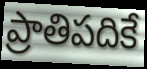
ప్రాతిపదికే